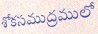
శోకసముద్రములో